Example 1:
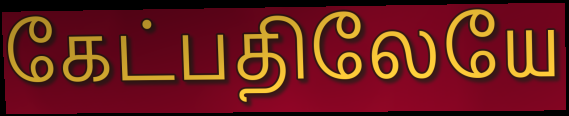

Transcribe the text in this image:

கேட்பதிலேயே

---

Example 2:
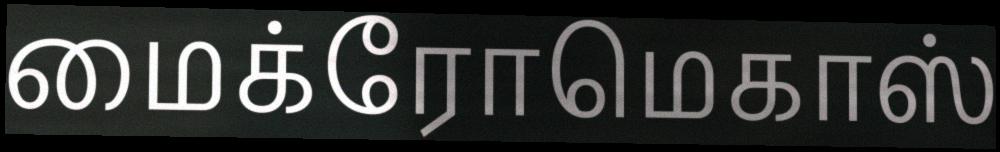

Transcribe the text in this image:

மைக்ரோமெகாஸ்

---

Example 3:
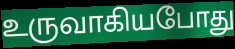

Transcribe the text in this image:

உருவாகியபோது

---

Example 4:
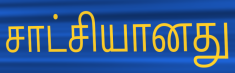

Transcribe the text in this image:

சாட்சியானது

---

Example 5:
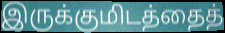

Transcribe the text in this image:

இருக்குமிடத்தைத்